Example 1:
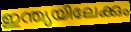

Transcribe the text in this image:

ഇന്ത്യയിലേക്കും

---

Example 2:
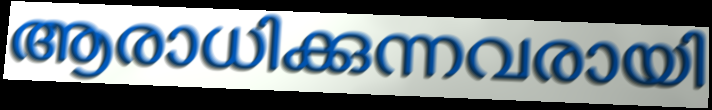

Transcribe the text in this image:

ആരാധിക്കുന്നവരായി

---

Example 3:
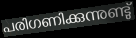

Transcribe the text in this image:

പരിഗണിക്കുന്നുണ്ടു്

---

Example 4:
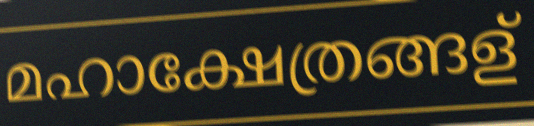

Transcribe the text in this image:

മഹാക്ഷേത്രങ്ങള്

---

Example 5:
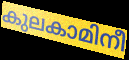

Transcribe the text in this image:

കുലകാമിനീ